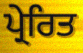
ਪ੍ਰੇਰਿਤ